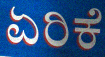
ಏರಿಕೆ